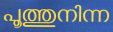
പൂത്തുനിന്ന